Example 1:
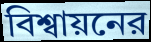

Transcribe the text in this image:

বিশ্বায়নের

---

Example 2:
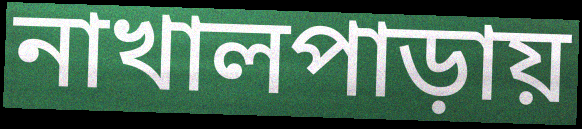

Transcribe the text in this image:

নাখালপাড়ায়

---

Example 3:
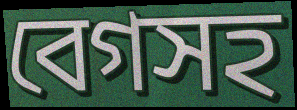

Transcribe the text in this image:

বেগসহ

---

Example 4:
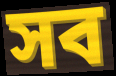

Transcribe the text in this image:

সব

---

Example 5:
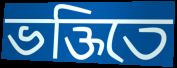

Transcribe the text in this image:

ভক্তিতে